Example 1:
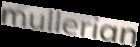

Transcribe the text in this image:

mullerian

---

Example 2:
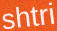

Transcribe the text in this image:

shtri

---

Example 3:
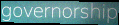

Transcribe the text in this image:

governorship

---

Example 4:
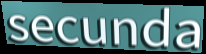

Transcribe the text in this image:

secunda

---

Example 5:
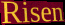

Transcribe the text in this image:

Risen